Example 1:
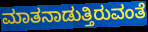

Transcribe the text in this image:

ಮಾತನಾಡುತ್ತಿರುವಂತೆ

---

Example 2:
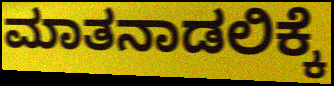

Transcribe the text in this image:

ಮಾತನಾಡಲಿಕ್ಕೆ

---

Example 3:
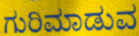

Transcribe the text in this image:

ಗುರಿಮಾಡುವ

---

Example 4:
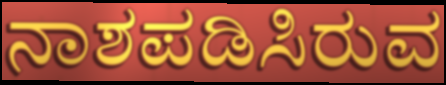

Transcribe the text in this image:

ನಾಶಪಡಿಸಿರುವ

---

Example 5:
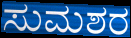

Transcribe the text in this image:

ಸುಮಶರ